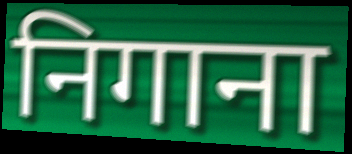
निगाना